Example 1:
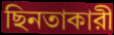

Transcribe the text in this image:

ছিনতাকারী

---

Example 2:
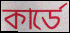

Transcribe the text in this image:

কার্ডে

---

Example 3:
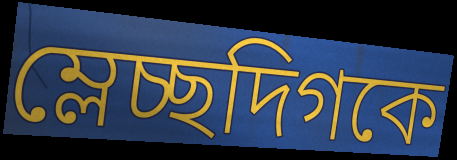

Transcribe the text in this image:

ম্লেচ্ছদিগকে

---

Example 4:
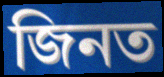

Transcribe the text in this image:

জিনত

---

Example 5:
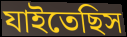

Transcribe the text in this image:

যাইতেছিস